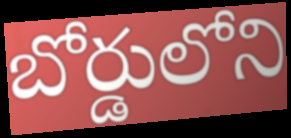
బోర్డులోని